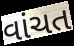
વાંચત